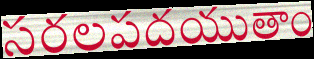
సరలపదయుతాం